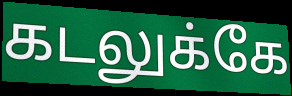
கடலுக்கே